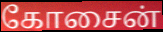
கோசைன்